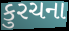
કુરચના